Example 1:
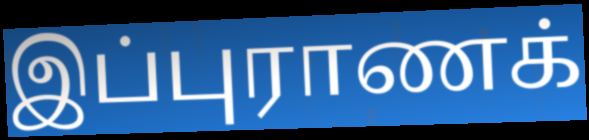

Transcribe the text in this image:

இப்புராணக்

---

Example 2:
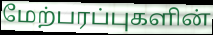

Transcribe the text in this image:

மேற்பரப்புகளின்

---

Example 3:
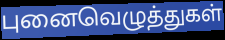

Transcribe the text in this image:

புனைவெழுத்துகள்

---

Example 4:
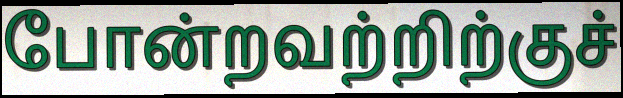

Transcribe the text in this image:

போன்றவற்றிற்குச்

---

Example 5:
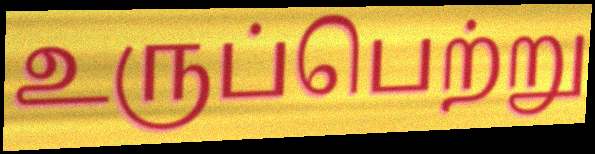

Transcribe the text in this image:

உருப்பெற்று